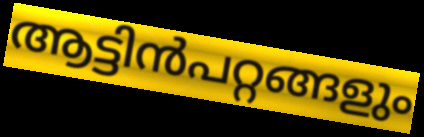
ആട്ടിൻപറ്റങ്ങളും